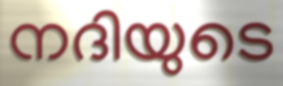
നദിയുടെ